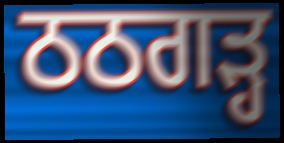
ਠਠਗੜ੍ਹ